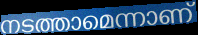
നടത്താമെന്നാണ്